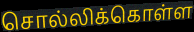
சொல்லிக்கொள்ள